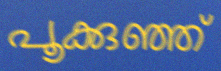
പൂക്കുഞ്ഞ്